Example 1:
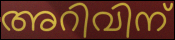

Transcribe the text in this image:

അറിവിന്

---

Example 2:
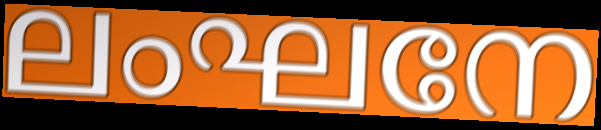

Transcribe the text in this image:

ലംഘനേ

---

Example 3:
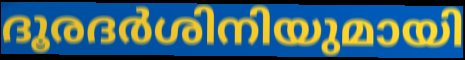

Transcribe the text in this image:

ദൂരദർശിനിയുമായി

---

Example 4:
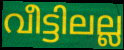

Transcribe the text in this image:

വീട്ടിലല്ല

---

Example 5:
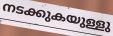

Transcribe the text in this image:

നടക്കുകയുള്ളു